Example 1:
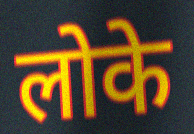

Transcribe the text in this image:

लोके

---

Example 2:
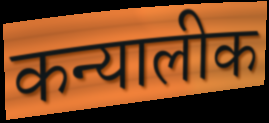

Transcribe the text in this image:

कन्यालीक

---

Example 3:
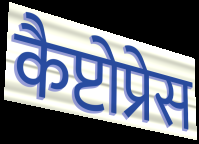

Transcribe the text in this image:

कैप्टोप्रेस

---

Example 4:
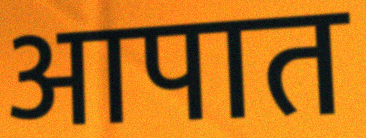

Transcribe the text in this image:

आपात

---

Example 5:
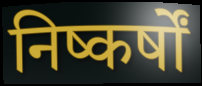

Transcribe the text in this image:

निष्कर्षों